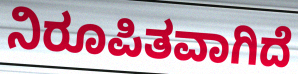
ನಿರೂಪಿತವಾಗಿದೆ